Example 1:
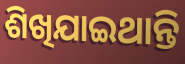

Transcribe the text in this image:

ଶିଖିଯାଇଥାନ୍ତି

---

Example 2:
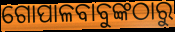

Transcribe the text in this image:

ଗୋପାଳବାବୁଙ୍କଠାରୁ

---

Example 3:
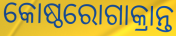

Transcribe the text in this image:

କୋଷ୍ଠରୋଗାକ୍ରାନ୍ତ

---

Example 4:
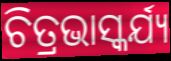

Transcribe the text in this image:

ଚିତ୍ରଭାସ୍କର୍ଯ୍ୟ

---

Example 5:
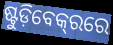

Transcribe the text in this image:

ଷ୍ଟୁଡ଼ିବେକ୍‌ରରେ